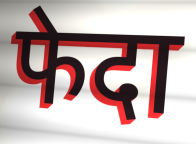
फेदा